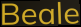
Beale